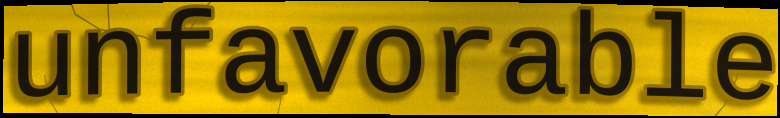
unfavorable